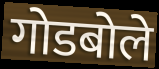
गोडबोले